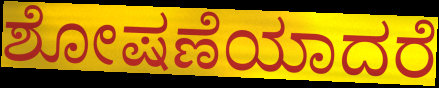
ಶೋಷಣೆಯಾದರೆ